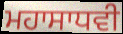
ਮਹਾਸਾਧਵੀ